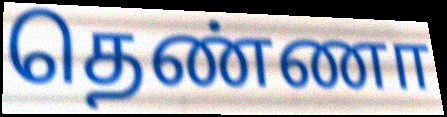
தெண்ணா